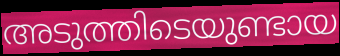
അടുത്തിടെയുണ്ടായ